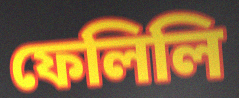
ফেলিলি